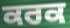
ਕਰਕ